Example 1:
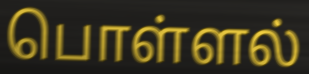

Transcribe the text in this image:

பொள்ளல்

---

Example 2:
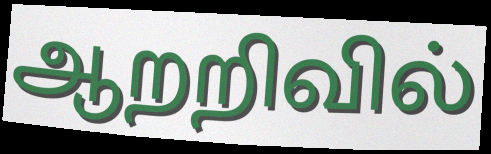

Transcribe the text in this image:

ஆறறிவில்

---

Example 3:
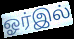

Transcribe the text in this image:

ஓர்இல்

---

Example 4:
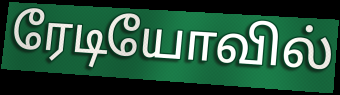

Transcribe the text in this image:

ரேடியோவில்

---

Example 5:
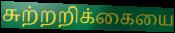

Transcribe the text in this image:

சுற்றறிக்கையை